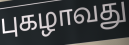
புகழாவது